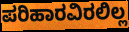
ಪರಿಹಾರವಿರಲಿಲ್ಲ